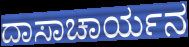
ದಾಸಾಚಾರ್ಯನ